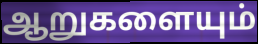
ஆறுகளையும்